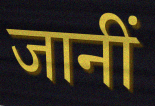
जानीं